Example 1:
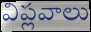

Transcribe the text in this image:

విప్లవాలు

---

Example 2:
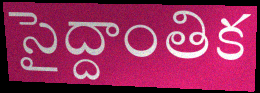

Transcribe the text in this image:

సైద్దాంతిక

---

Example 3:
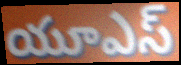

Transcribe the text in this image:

యూఎస్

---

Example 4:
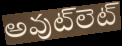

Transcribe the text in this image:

అవుట్‌లెట్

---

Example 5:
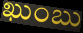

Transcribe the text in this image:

ఖుంబు